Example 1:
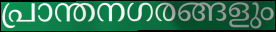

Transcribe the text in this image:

പ്രാന്തനഗരങ്ങളും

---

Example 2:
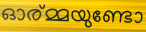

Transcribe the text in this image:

ഓര്മ്മയുണ്ടോ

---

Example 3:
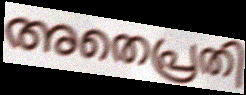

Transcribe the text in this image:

അതെപ്രതി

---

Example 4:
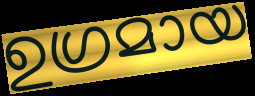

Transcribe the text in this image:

ഉഗ്രമായ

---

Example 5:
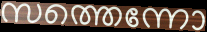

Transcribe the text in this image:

സത്തെന്നോ